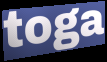
toga